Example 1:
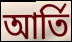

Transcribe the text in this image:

আর্তি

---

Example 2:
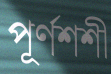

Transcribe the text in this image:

পূর্ণশশী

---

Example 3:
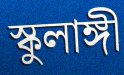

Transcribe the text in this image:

স্কুলাঙ্গী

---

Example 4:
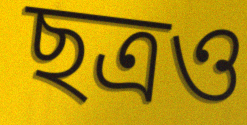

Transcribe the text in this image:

ছত্রও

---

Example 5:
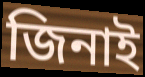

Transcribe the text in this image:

জিনাই